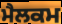
ਮੈਲਕਮ